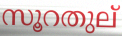
സൂറതുല്